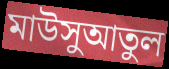
মাউসুআতুল